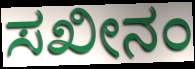
ಸಖೀನಂ